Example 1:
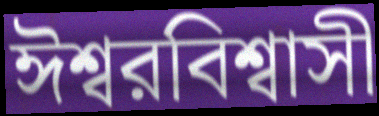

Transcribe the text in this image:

ঈশ্বরবিশ্বাসী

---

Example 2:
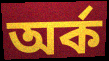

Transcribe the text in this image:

অর্ক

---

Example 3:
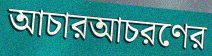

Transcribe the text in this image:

আচারআচরণের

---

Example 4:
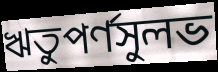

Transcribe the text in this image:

ঋতুপর্ণসুলভ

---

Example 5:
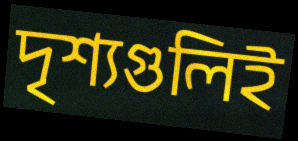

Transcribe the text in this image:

দৃশ্যগুলিই